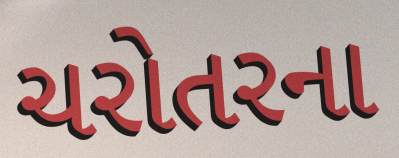
ચરોતરના